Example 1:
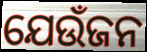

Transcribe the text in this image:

ଯେଉଁଜନ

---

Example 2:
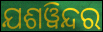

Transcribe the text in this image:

ଯଶୱିନ୍ଦର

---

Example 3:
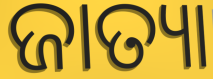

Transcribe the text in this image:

ଜାତ୍ୟା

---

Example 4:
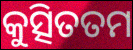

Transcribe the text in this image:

କୁତ୍ସିତତମ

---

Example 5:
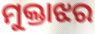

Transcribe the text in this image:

ମୁକ୍ତାଝର